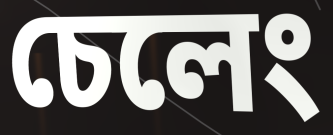
চেলেং